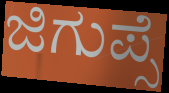
ಜಿಗುಪ್ಸೆ